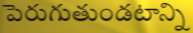
పెరుగుతుండటాన్ని